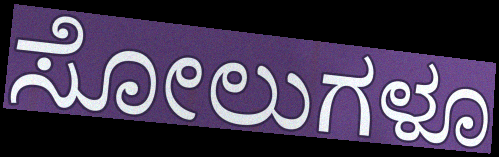
ಸೋಲುಗಳೂ